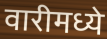
वारीमध्ये